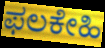
ಫಲಕೇಹಿ